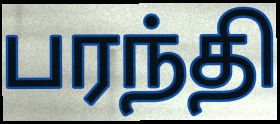
பரந்தி